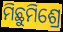
ମିଛୁମିଶ୍ରେ